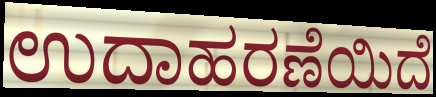
ಉದಾಹರಣೆಯಿದೆ